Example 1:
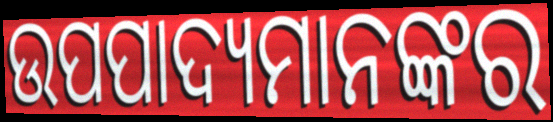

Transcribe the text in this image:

ଉପପାଦ୍ୟମାନଙ୍କର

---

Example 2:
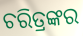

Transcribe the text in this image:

ଚରିତ୍ରଙ୍କର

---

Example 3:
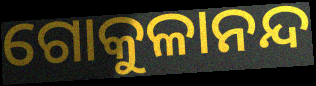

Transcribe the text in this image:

ଗୋକୁଳାନନ୍ଦ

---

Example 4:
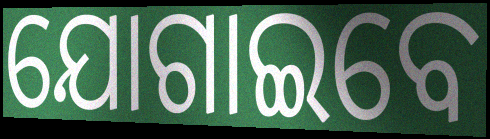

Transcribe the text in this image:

ଯୋଗାଇବେ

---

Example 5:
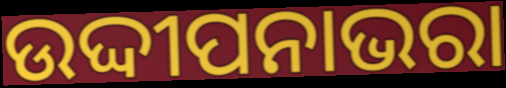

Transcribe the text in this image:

ଉଦ୍ଦୀପନାଭରା